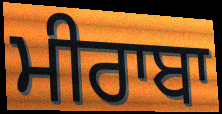
ਮੀਰਾਬਾ